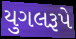
યુગલરૂપે